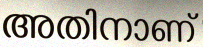
അതിനാണ്